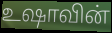
உஷாவின்